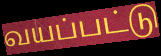
வயப்பட்டு